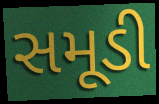
સમૂડી